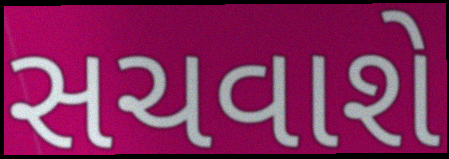
સચવાશે